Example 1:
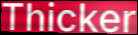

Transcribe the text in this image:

Thicker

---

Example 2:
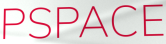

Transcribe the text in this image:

PSPACE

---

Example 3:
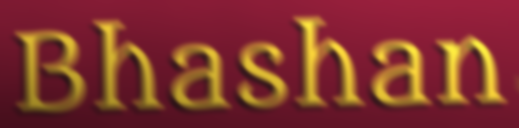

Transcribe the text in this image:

Bhashan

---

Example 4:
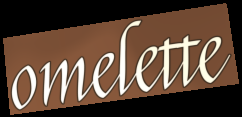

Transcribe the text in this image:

omelette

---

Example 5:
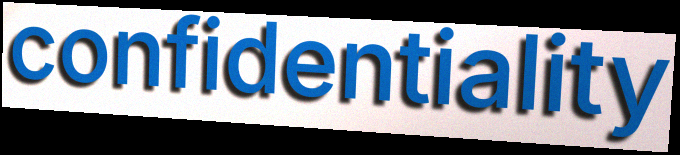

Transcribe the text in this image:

confidentiality